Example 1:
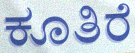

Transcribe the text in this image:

ಕೂತಿರೆ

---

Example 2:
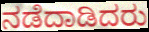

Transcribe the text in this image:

ನಡೆದಾಡಿದರು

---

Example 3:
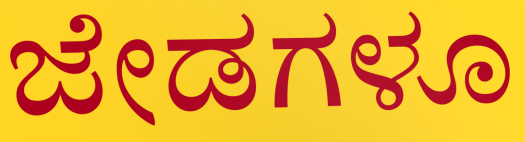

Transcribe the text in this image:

ಜೇಡಗಳೂ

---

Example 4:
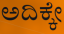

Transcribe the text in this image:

ಅದಿಕ್ಕೇ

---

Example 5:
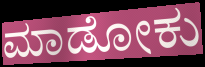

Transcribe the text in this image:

ಮಾಡೋಕು